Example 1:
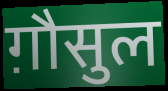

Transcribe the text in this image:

ग़ौसुल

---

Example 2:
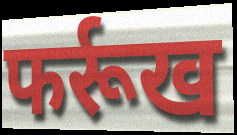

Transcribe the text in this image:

फर्रूख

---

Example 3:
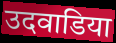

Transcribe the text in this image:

उदवाडिया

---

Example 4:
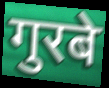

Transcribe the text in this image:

गुरबे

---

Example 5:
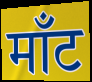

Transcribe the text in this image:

माँट